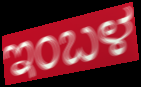
ಇಂಬಳ